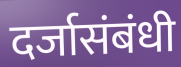
दर्जासंबंधी